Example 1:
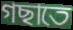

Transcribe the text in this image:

গছাতে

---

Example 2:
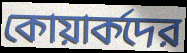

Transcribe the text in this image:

কোয়ার্কদের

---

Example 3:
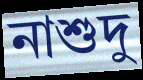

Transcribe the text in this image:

নাশুদু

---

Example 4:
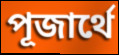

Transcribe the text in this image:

পূজার্থে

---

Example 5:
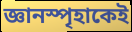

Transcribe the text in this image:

জ্ঞানস্পৃহাকেই